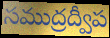
సముద్రద్వీప